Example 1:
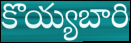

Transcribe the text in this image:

కొయ్యబారి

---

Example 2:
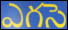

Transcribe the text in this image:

ఎగసె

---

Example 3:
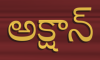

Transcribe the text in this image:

అక్షాన్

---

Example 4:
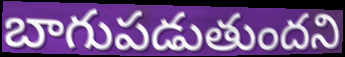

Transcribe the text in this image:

బాగుపడుతుందని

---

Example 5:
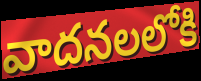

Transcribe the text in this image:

వాదనలలోకి